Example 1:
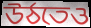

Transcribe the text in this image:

উঠতেও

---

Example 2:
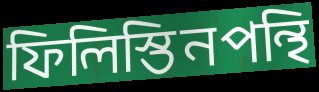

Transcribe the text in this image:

ফিলিস্তিনপন্থি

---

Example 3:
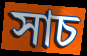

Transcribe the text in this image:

সাচ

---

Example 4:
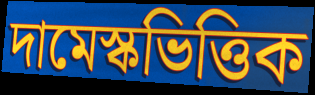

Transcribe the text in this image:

দামেস্কভিত্তিক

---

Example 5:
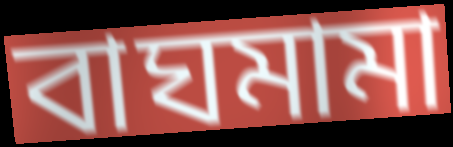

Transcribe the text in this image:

বাঘমামা